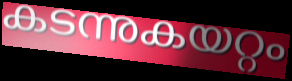
കടന്നുകയറ്റം